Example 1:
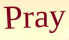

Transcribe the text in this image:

Pray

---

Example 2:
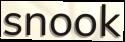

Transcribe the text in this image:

snook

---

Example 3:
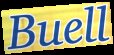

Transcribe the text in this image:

Buell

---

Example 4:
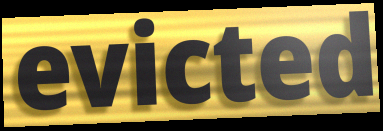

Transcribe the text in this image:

evicted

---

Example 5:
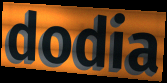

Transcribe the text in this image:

dodia